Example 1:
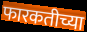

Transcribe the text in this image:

फारकतीच्या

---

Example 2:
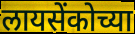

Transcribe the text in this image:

लायसेंकोच्या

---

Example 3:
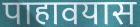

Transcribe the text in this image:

पाहावयास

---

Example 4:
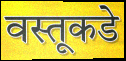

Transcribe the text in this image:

वस्तूकडे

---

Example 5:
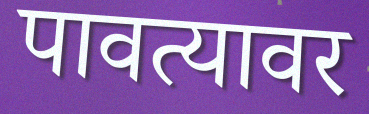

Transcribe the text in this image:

पावत्यावर